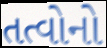
તત્વોનો